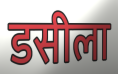
डसीला